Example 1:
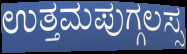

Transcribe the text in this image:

ಉತ್ತಮಪುಗ್ಗಲಸ್ಸ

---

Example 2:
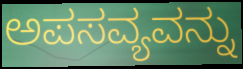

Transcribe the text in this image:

ಅಪಸವ್ಯವನ್ನು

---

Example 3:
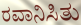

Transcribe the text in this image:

ರವಾನಿಸಿತು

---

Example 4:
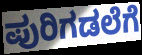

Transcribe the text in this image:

ಪುರಿಗಡಲೆಗೆ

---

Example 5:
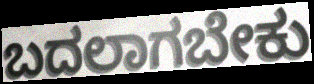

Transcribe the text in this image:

ಬದಲಾಗಬೇಕು